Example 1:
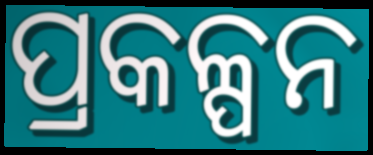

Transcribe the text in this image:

ପ୍ରକଳ୍ପନ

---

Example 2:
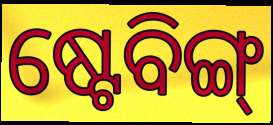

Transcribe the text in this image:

ଷ୍ଟେବିଙ୍ଗ୍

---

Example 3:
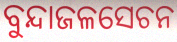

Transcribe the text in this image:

ବୁନ୍ଦାଜଳସେଚନ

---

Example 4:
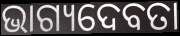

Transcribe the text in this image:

ଭାଗ୍ୟଦେବତା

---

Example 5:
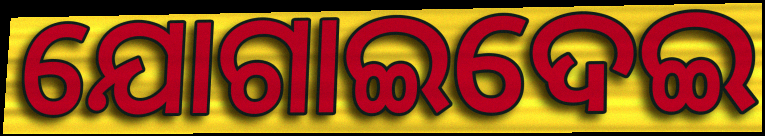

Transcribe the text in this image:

ଯୋଗାଇଦେଇ